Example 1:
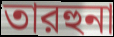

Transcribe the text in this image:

তারহুনা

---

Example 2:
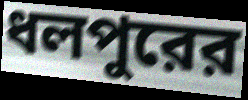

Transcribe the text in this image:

ধলপুরের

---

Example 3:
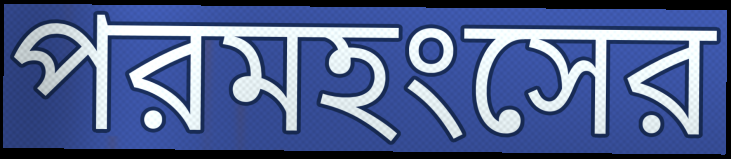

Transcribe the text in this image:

পরমহংসের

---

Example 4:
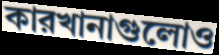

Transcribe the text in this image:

কারখানাগুলোও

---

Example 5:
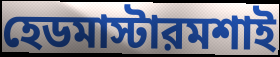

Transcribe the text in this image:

হেডমাস্টারমশাই